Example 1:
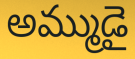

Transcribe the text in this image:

అమ్ముడై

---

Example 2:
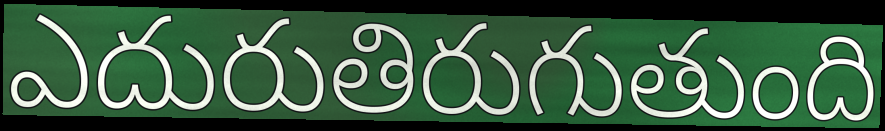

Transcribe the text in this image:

ఎదురుతిరుగుతుంది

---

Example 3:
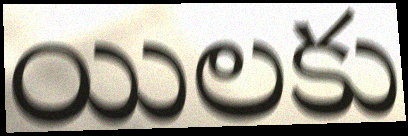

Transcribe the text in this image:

యిలకు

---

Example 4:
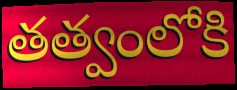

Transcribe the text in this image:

తత్వంలోకి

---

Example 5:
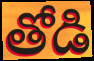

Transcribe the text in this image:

తోడి